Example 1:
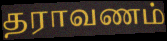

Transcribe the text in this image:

தராவணம்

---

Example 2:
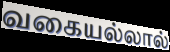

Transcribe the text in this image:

வகையல்லால்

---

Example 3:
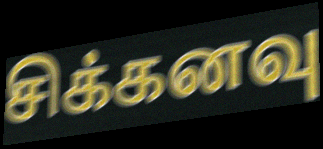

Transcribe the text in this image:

சிக்கனவு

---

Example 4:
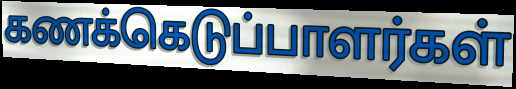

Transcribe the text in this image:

கணக்கெடுப்பாளர்கள்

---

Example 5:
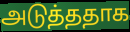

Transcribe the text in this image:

அடுத்ததாக